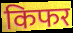
किफर